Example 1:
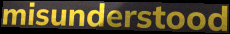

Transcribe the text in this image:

misunderstood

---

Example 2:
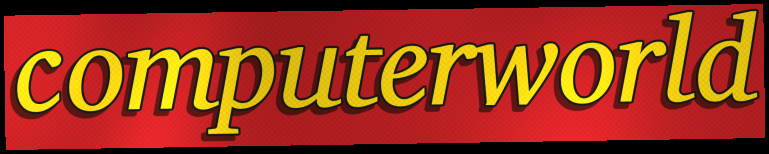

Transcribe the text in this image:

computerworld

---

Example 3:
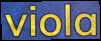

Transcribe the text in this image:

viola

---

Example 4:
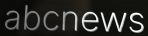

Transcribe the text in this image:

abcnews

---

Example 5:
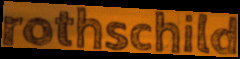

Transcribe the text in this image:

rothschild